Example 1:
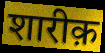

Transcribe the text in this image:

शारीक़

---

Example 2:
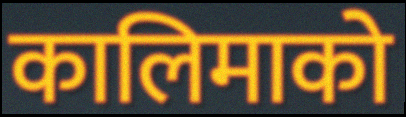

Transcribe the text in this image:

कालिमाको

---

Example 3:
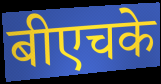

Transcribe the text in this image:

बीएचके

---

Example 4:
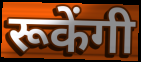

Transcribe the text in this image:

रूकेंगी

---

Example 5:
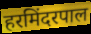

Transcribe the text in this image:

हरमिंदरपाल